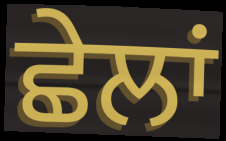
ਛੇਲਾਂ